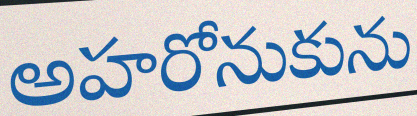
అహరోనుకును